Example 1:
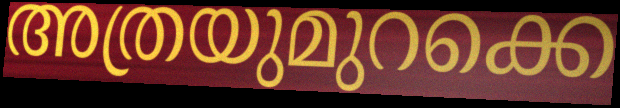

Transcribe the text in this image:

അത്രയുമുറക്കെ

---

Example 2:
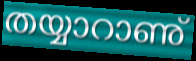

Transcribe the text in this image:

തയ്യാറാണു്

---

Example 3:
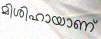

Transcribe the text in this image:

മിശിഹായാണ്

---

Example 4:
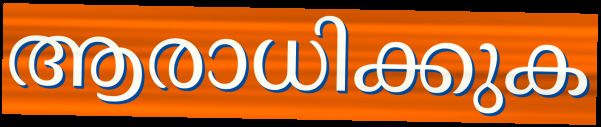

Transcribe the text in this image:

ആരാധിക്കുക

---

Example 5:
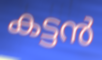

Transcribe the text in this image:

കട്ടൻ